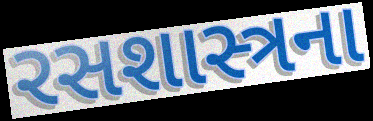
રસશાસ્ત્રના